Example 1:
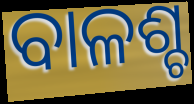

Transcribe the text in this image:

ବାଳଶ୍ଚ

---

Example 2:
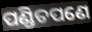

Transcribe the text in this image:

ପଣ୍ଡିତପଣେ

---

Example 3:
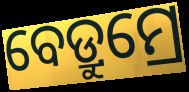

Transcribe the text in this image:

ବେଡ୍ରୁମ୍ରେ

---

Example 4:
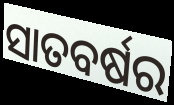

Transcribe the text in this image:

ସାତବର୍ଷର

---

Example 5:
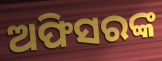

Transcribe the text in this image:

ଅଫିସରଙ୍କ